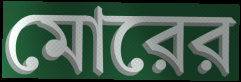
মোরের